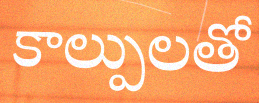
కాల్పులతో